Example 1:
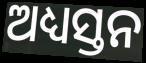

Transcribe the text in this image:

ଅଧ୍ୟସ୍ତନ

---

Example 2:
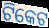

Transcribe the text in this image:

ଟିକେଟ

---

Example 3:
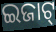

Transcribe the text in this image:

ଇଜାଟ୍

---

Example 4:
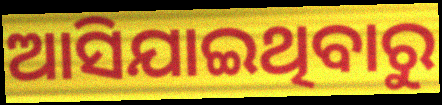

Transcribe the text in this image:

ଆସିଯାଇଥିବାରୁ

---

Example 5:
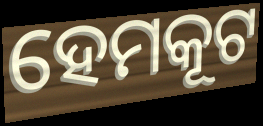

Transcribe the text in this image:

ହେମକୂଟ